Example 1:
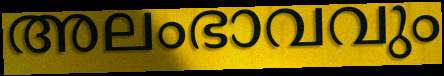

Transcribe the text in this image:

അലംഭാവവും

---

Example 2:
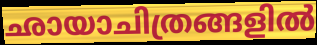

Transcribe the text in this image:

ഛായാചിത്രങ്ങളിൽ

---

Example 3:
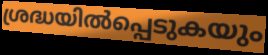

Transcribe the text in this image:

ശ്രദ്ധയിൽപ്പെടുകയും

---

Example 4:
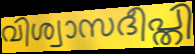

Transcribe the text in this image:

വിശ്വാസദീപ്തി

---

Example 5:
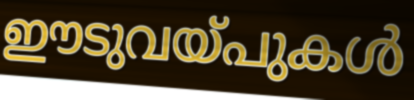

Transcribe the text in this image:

ഈടുവയ്പുകൾ